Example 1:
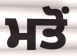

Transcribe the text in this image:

ਮਤੋਂ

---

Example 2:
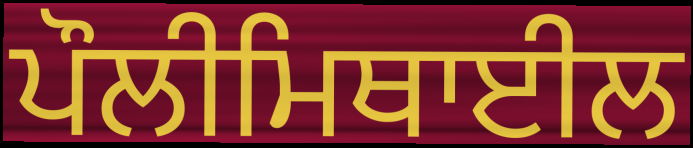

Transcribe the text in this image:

ਪੌਲੀਮਿਥਾਈਲ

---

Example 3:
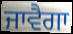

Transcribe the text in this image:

ਜਾਵੈਗਾ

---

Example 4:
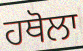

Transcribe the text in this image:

ਹਥੋਲਾ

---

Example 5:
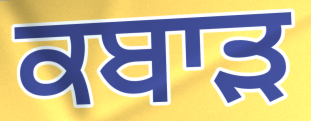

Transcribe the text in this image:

ਕਬਾੜ